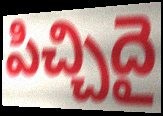
పిచ్చిదై